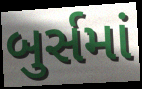
બુર્સમાં